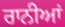
ਰਾਨੀਆਂ